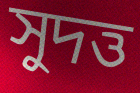
সুদত্ত